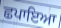
ਛਪਾਇਆ